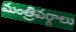
మంత్రివర్గాలు